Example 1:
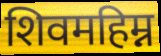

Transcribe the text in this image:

शिवमहिम्न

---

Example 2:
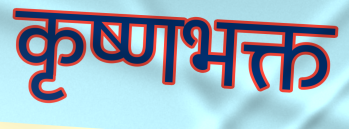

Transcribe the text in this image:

कृष्णभक्त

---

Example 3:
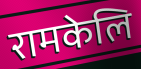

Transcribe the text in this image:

रामकेलि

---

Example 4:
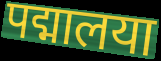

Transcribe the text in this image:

पद्मालया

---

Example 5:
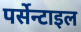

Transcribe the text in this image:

पर्सेन्टाइल